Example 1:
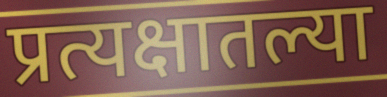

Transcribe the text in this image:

प्रत्यक्षातल्या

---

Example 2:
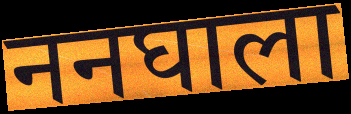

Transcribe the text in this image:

ननघाला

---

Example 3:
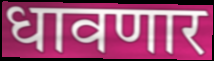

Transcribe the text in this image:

धावणार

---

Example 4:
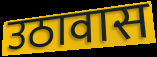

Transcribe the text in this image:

उठावास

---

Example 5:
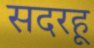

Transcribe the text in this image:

सदरहू